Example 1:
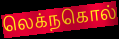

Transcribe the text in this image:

லெக்நகொல்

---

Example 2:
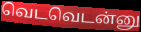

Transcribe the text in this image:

வெடவெடன்னு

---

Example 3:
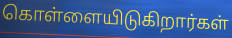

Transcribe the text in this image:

கொள்ளையிடுகிறார்கள்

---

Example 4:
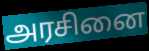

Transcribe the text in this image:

அரசினை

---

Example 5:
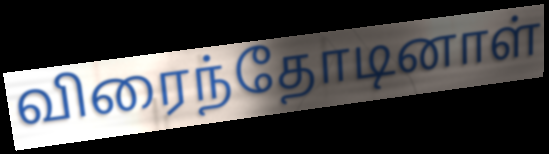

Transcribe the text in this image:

விரைந்தோடினாள்